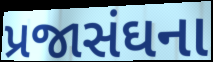
પ્રજાસંઘના